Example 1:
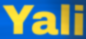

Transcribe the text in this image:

Yali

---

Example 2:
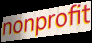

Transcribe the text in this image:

nonprofit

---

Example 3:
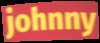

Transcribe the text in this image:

johnny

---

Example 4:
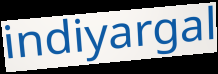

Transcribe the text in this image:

indiyargal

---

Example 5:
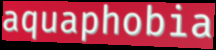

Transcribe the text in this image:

aquaphobia